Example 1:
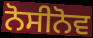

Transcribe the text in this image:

ਨੋਸੀਨੋਵ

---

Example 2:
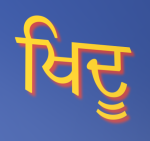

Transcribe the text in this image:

ਖਿਦੂ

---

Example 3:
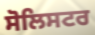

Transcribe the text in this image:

ਸੋਲਿਸਟਰ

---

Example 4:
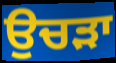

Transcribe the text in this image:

ਉਚੜਾ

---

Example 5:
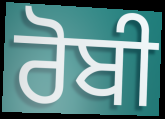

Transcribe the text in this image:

ਰੋਬੀ